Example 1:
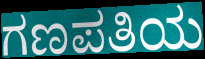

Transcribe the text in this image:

ಗಣಪತಿಯ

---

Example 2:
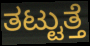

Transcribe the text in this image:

ತಟ್ಟುತ್ತೆ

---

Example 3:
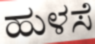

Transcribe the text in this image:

ಹುಳಸೆ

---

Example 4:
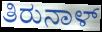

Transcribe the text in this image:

ತಿರುನಾಳ್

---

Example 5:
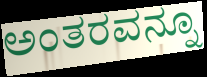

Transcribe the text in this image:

ಅಂತರವನ್ನೂ